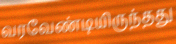
வரவேண்டியிருந்தது